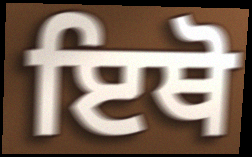
ਇਥੋ